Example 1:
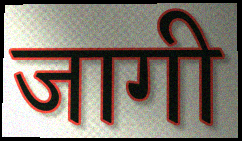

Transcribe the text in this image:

जागी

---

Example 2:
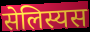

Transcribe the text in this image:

सेलिस्यस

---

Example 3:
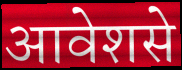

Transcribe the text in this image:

आवेशसे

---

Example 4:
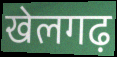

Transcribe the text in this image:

खेलगढ़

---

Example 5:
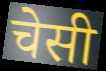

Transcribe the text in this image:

चेसी